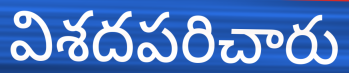
విశదపరిచారు